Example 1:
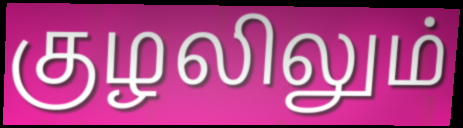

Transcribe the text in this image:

குழலிலும்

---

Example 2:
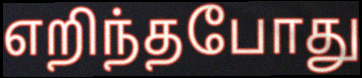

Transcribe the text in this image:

எறிந்தபோது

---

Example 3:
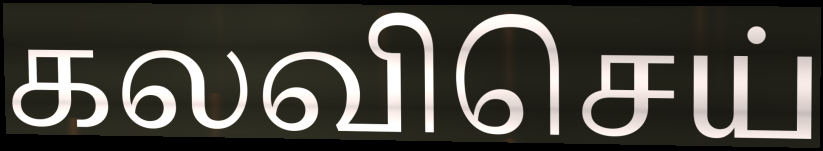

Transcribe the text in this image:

கலவிசெய்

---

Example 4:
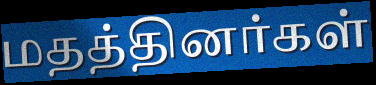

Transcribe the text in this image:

மதத்தினர்கள்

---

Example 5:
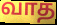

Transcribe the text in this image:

வாத